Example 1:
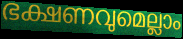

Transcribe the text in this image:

ഭക്ഷണവുമെല്ലാം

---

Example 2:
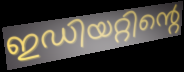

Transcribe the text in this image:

ഇഡിയറ്റിന്റെ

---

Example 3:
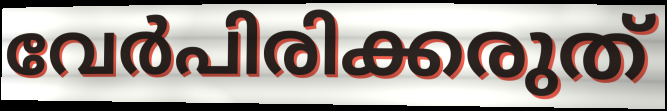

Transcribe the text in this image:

വേർപിരിക്കരുത്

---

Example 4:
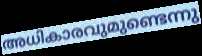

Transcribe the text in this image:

അധികാരവുമുണ്ടെന്നു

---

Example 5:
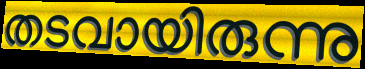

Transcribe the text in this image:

തടവായിരുന്നു